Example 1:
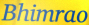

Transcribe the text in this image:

Bhimrao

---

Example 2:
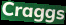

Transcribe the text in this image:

Craggs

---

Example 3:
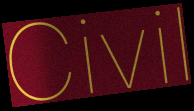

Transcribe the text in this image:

Civil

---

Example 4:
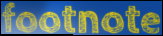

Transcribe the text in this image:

footnote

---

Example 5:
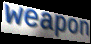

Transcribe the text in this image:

weapon